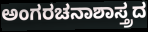
ಅಂಗರಚನಾಶಾಸ್ತ್ರದ